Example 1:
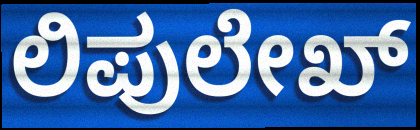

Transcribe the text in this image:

ಲಿಪುಲೇಖ್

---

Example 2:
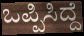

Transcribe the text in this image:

ಒಪ್ಪಿಸಿದ್ದೆ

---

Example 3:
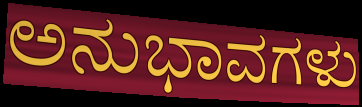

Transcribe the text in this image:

ಅನುಭಾವಗಳು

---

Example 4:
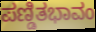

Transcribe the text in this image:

ಪಣ್ಡಿತಭಾವಂ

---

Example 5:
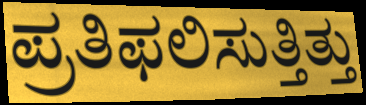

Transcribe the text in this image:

ಪ್ರತಿಫಲಿಸುತ್ತಿತ್ತು